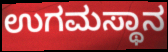
ಉಗಮಸ್ಥಾನ